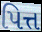
પિત્ત